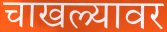
चाखल्यावर